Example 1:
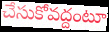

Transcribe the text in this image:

చేసుకోవద్దంటూ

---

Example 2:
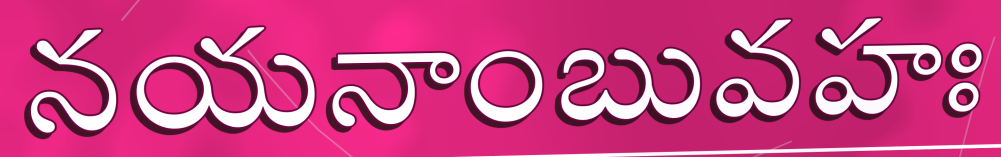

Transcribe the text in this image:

నయనాంబువహః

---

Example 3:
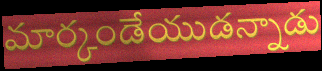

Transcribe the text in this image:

మార్కండేయుడన్నాడు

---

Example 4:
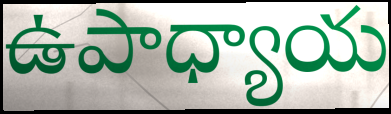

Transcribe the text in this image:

ఉపాధ్యాయ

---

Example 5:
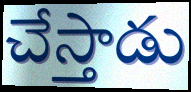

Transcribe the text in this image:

చేస్తాడు